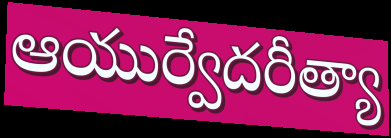
ఆయుర్వేదరీత్యా